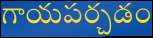
గాయపర్చడం